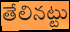
తేలినట్టు